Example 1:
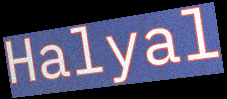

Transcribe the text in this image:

Halyal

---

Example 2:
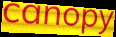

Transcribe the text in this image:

canopy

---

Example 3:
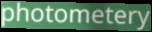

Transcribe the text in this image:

photometery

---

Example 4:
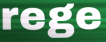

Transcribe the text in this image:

rege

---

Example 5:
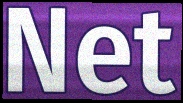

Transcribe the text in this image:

Net